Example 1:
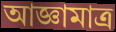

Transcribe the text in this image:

আজ্ঞামাত্র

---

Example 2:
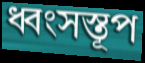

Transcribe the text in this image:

ধ্বংসস্তূপ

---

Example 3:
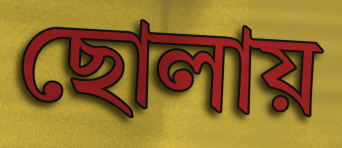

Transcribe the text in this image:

ছোলায়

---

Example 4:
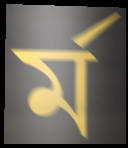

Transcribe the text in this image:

র্ম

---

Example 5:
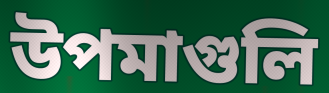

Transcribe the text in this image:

উপমাগুলি